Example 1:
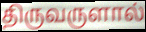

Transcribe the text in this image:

திருவருளால்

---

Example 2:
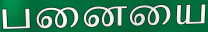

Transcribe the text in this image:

பனையை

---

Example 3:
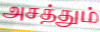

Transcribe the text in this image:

அசத்தும்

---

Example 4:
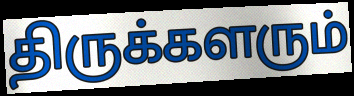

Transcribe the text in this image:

திருக்களரும்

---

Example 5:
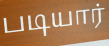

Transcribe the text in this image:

படியார்